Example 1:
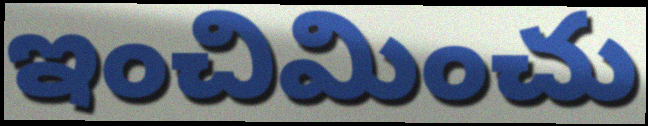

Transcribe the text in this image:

ఇంచిమించు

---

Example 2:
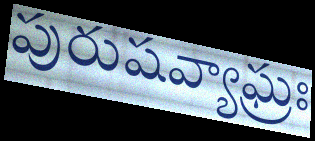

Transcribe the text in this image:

పురుషవ్యాఘ్రః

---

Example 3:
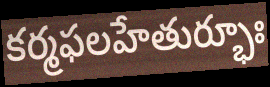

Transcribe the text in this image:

కర్మఫలహేతుర్భూః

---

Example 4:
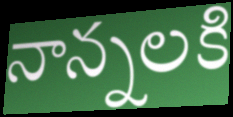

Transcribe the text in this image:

నాన్నలకి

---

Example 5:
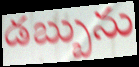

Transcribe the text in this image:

డబ్బును